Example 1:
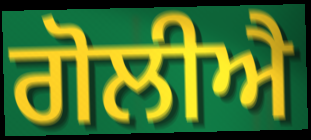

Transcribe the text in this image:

ਗੋਲੀਐ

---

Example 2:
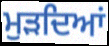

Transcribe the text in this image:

ਮੁੜਦਿਆਂ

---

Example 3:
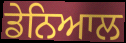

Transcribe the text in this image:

ਡੇਨਿਆਲ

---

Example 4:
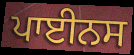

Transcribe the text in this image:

ਪਾਈਨਸ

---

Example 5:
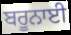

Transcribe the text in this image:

ਬਰੂਨਾਈ